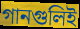
গানগুলিই